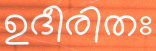
ഉദീരിതഃ